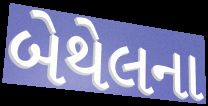
બેથેલના